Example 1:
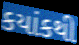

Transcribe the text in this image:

કયાંકથી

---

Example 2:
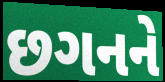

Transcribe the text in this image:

છગનને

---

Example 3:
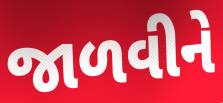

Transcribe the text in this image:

જાળવીને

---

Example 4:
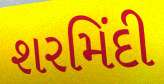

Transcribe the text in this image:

શરમિંદી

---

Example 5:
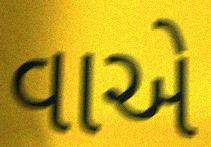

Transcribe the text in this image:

વાએ